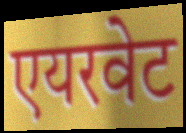
एयरवेट